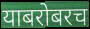
याबरोबरच